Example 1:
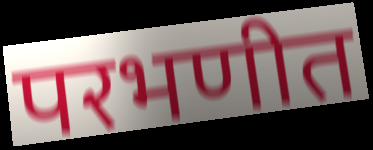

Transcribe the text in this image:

परभणीत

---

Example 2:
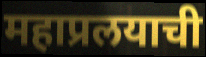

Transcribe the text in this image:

महाप्रलयाची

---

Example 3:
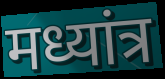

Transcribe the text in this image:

मध्यांत्र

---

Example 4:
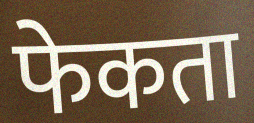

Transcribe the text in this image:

फेकता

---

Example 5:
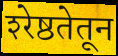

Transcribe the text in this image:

श्रेष्ठतेतून